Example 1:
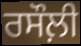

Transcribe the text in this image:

ਰਸੌਲ਼ੀ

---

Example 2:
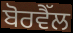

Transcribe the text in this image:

ਬੋਰਵੈੱਲ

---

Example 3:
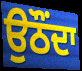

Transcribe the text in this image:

ਉਠੌਂਦਾ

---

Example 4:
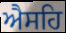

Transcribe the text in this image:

ਐਸਹਿ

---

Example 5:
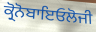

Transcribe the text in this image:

ਕ੍ਰੋਨੋਬਾਇਓਲੋਜੀ